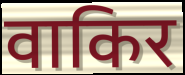
वाकिर